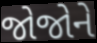
જોજોને